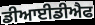
ਡੀਆਈਡੀਐਫ